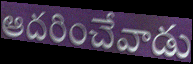
ఆదరించేవాడు